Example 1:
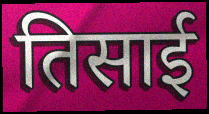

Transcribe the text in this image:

तिसाई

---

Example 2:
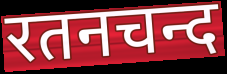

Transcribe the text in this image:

रतनचन्द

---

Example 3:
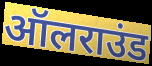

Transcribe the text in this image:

ऑलराउंड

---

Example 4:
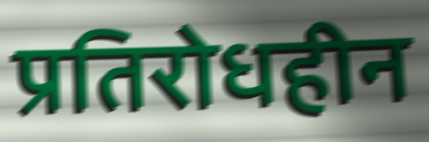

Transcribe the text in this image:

प्रतिरोधहीन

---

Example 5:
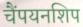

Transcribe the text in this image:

चैंपयनशिप